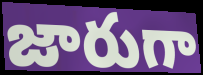
జారుగా